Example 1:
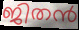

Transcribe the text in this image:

ജിതൻ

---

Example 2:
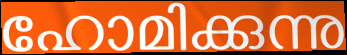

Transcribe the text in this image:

ഹോമിക്കുന്നു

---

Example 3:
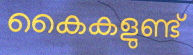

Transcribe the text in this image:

കൈകളുണ്ട്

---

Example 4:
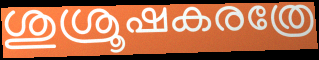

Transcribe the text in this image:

ശുശ്രൂഷകരത്രേ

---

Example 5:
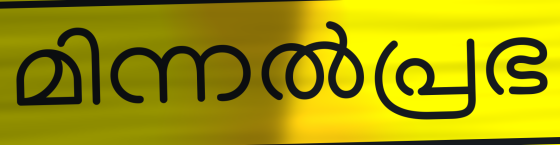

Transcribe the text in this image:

മിന്നൽപ്രഭ